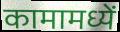
कामामध्यें